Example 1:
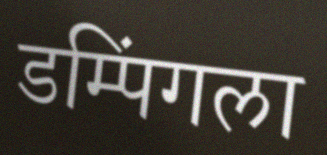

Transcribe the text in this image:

डम्पिंगला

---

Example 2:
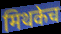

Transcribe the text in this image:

मिथकेच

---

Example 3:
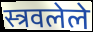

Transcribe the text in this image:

स्त्रवलेले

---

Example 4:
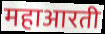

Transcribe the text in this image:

महाआरती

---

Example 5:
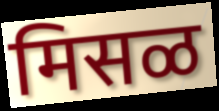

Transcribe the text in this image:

मिसळ